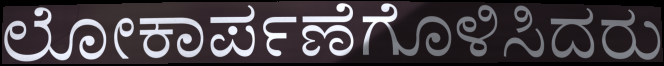
ಲೋಕಾರ್ಪಣೆಗೊಳಿಸಿದರು